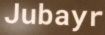
Jubayr